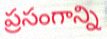
ప్రసంగాన్ని